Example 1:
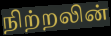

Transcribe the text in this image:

நிற்றலின்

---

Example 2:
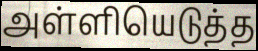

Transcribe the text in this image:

அள்ளியெடுத்த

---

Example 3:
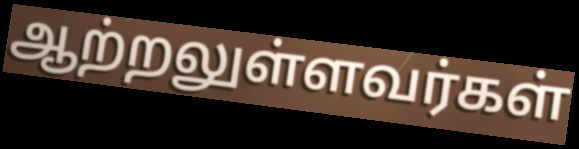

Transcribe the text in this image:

ஆற்றலுள்ளவர்கள்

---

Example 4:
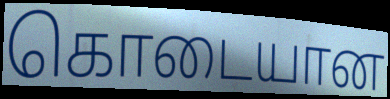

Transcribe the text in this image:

கொடையான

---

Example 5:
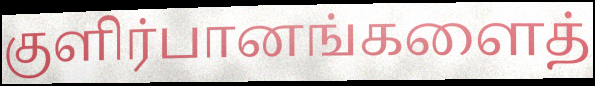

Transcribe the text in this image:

குளிர்பானங்களைத்